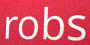
robs